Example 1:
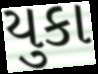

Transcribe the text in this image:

યુકા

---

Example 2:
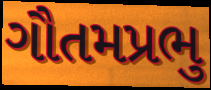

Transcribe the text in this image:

ગૌતમપ્રભુ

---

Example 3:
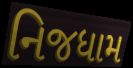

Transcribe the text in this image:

નિજધામ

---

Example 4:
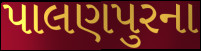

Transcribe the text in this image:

પાલણપુરના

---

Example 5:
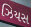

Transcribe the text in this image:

ઝિયસ